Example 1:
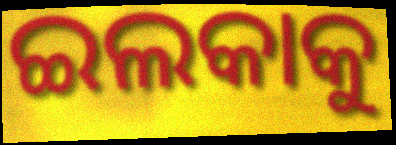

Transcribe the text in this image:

ଇଲକାକୁ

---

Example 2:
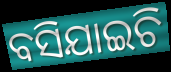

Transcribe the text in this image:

ବସିଯାଇଚି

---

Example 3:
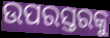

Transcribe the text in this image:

ଉପରସ୍ତରକୁ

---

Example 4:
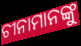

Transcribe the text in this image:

ଚୀନାମାନଙ୍କୁ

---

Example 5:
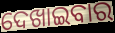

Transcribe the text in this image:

ଦେଖାଇବାର